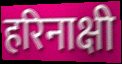
हरिनाक्षी